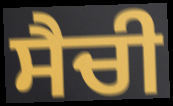
ਸੈਚੀ